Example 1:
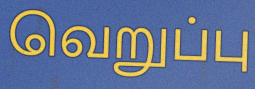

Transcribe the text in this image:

வெறுப்பு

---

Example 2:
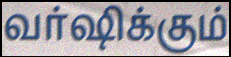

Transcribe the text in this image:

வர்ஷிக்கும்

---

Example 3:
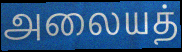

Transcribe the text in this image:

அலையத்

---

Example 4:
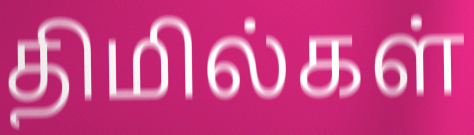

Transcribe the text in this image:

திமில்கள்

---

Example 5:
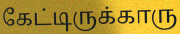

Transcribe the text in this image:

கேட்டிருக்காரு